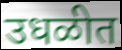
उधळीत